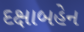
દક્ષાબહેન